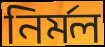
নিৰ্মল